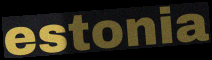
estonia